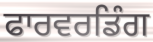
ਫਾਰਵਰਡਿੰਗ